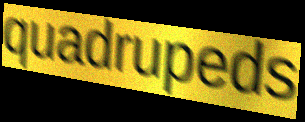
quadrupeds